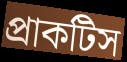
প্রাকটিস